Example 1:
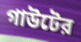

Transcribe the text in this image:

গাউটের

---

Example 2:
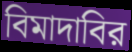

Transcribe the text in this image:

বিমাদাবির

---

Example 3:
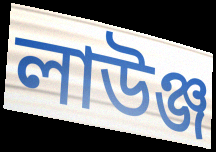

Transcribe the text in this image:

লাউঞ্জ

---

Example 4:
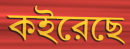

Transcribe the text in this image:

কইরেছে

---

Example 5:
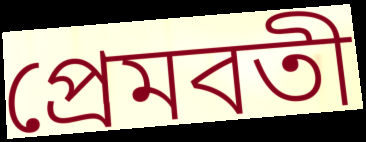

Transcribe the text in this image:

প্রেমবতী